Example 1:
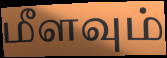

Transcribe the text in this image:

மீளவும்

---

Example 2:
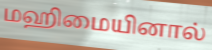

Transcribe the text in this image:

மஹிமையினால்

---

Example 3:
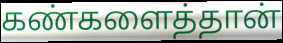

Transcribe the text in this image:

கண்களைத்தான்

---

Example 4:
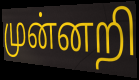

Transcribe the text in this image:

முன்னறி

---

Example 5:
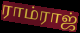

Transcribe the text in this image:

ராம்ராஜ்